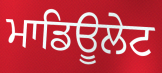
ਮਾਡਿਊਲੇਟ